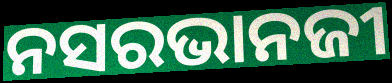
ନସରଭାନଜୀ